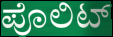
ಪೊಲಿಟ್